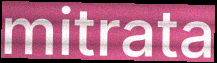
mitrata